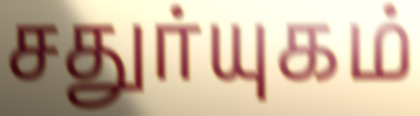
சதுர்யுகம்